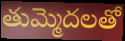
తుమ్మెదలతో